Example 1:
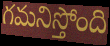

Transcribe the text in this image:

గమనిస్తోంది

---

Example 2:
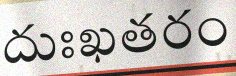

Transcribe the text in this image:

దుఃఖతరం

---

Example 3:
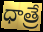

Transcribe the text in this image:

ధాత్రే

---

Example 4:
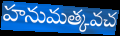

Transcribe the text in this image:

హనుమత్కవచ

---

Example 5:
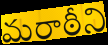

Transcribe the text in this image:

మరాఠీని